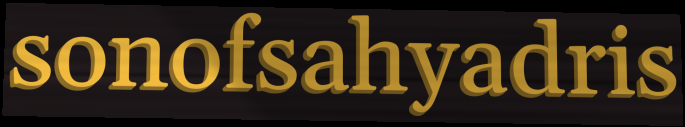
sonofsahyadris